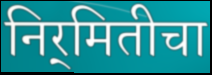
निर्मितीचा